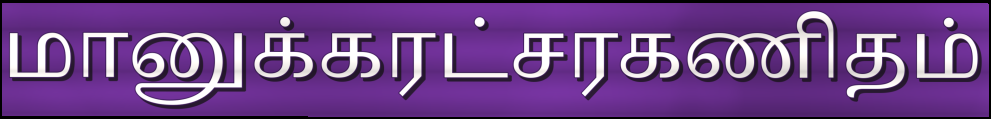
மானுக்கரட்சரகணிதம்